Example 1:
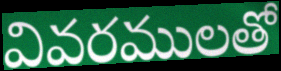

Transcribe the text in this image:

వివరములతో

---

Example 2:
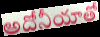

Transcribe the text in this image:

అదోనీయాతో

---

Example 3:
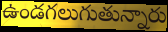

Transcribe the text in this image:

ఉండగలుగుతున్నారు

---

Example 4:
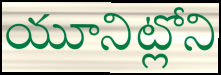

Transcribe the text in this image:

యూనిట్లోని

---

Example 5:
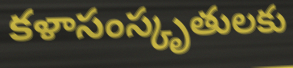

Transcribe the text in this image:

కళాసంస్కృతులకు